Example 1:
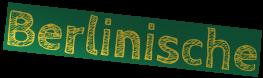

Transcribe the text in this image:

Berlinische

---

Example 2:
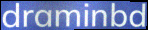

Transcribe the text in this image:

draminbd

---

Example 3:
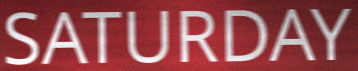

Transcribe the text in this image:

SATURDAY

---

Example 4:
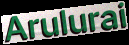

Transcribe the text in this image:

Arulurai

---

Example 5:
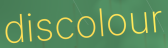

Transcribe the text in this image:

discolour